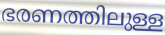
ഭരണത്തിലുള്ള